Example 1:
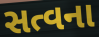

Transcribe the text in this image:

સત્વના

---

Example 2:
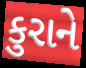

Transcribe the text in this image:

કુરાને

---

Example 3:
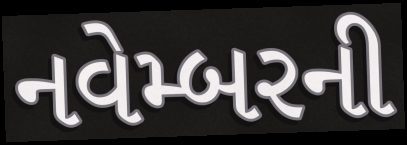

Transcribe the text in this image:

નવેમ્બરની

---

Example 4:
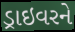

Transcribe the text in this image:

ડ્રાઇવરને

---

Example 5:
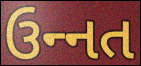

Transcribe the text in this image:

ઉન્‍નત